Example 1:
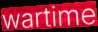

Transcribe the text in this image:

wartime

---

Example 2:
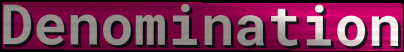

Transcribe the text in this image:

Denomination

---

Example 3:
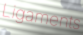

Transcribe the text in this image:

Ligaments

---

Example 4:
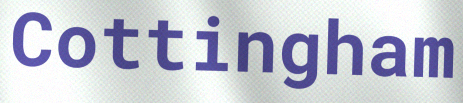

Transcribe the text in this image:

Cottingham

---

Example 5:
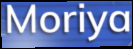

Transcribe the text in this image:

Moriya